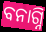
ବନାଗ୍ନି